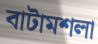
বাটামশলা